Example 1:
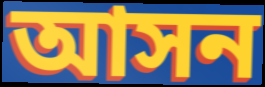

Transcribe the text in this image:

আসন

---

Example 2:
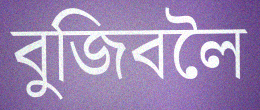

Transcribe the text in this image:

বুজিবলৈ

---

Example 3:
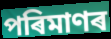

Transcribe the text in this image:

পৰিমাণৰ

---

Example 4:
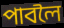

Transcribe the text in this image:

পাবলৈ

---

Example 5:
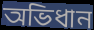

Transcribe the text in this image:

অভিধান